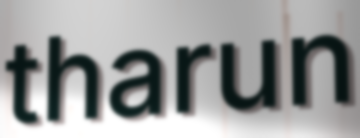
tharun